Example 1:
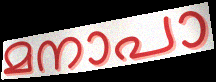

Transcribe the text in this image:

മനാപാ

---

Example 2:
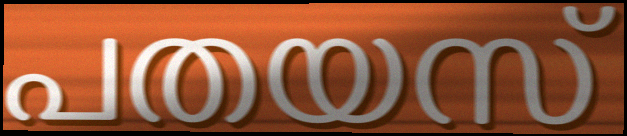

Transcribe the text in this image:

പതയസ്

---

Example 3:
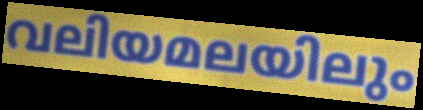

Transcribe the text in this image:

വലിയമലയിലും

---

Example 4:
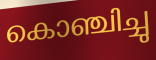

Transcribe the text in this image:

കൊഞ്ചിച്ചു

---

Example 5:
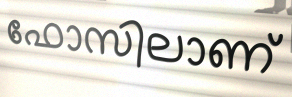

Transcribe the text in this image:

ഫോസിലാണ്